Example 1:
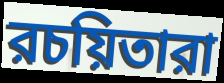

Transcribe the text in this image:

রচয়িতারা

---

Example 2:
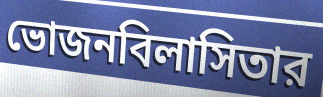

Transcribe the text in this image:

ভোজনবিলাসিতার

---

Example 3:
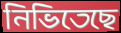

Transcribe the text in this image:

নিভিতেছে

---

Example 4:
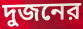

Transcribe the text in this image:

দুজনের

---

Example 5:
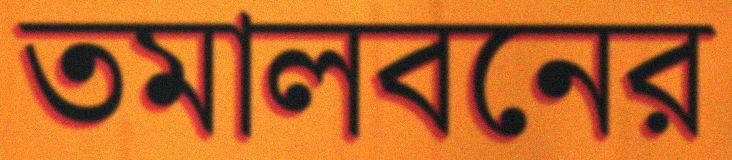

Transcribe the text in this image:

তমালবনের